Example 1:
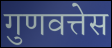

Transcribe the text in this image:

गुणवत्तेस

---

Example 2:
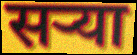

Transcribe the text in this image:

सऱ्या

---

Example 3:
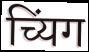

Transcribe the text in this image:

च्यिंग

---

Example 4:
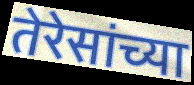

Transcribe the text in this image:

तेरेसांच्या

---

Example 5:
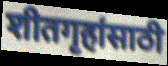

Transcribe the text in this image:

शीतगृहांसाठी